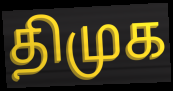
திமுக